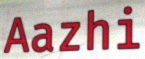
Aazhi